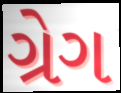
ગ્રેગ